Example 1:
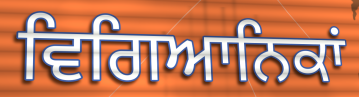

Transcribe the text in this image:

ਵਿਗਿਆਨਿਕਾਂ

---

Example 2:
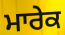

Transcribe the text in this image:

ਮਾਰੇਕ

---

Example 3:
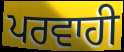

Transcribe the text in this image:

ਪਰਵਾਹੀ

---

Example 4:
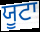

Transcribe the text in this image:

ਯੂਟਾ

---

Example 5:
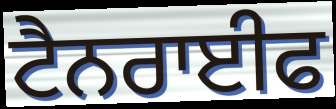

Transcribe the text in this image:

ਟੈਨਰਾਈਫ